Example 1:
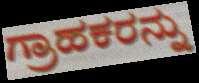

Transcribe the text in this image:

ಗ್ರಾಹಕರನ್ನು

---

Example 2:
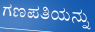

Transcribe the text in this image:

ಗಣಪತಿಯನ್ನು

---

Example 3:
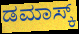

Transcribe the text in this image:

ಡಮಾಸ್ಕ್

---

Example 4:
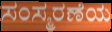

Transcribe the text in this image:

ಸಂಸ್ಮರಣೆಯ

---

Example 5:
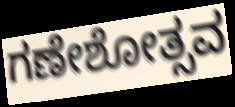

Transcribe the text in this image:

ಗಣೇಶೋತ್ಸವ